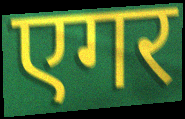
एगर